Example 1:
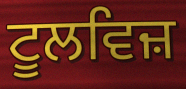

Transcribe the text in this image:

ਟੂਲਵਿਜ਼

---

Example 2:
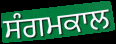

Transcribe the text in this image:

ਸੰਗਮਕਾਲ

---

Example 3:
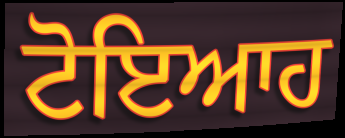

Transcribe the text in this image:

ਟੋਇਆਹ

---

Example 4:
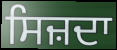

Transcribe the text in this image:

ਸਿਜ਼ਦਾ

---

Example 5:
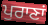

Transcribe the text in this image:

ਪੁਰਾਣਾਂ